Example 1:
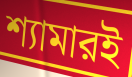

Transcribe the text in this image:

শ্যামারই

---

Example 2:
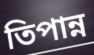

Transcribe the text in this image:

তিপান্ন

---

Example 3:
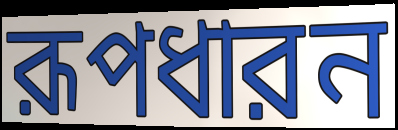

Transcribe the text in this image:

রূপধারন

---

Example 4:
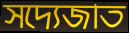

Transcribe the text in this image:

সদ্যেজাত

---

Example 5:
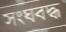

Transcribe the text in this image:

সংঘবদ্ধ